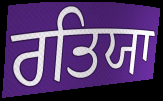
ਰਤਿਯਾ